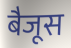
बैजूस